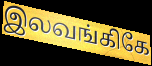
இலவங்கிகே